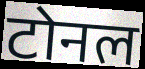
टोनल